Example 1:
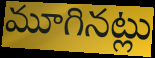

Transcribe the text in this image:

మూగినట్లు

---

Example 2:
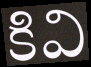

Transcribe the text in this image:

కివి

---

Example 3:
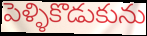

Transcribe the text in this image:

పెళ్ళికొడుకును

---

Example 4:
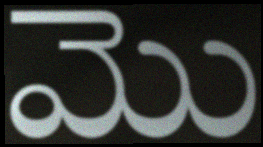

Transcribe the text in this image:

మొ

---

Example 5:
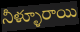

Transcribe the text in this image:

నీళ్ళూరాయి